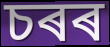
চৰৰ